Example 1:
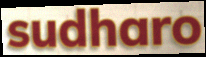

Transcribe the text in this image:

sudharo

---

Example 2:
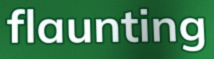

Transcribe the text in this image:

flaunting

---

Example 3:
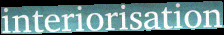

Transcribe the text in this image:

interiorisation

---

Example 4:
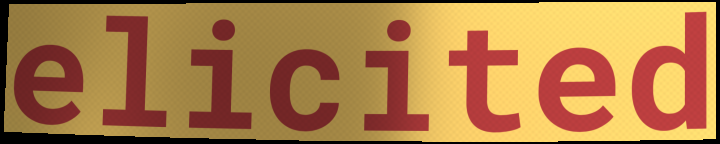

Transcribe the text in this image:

elicited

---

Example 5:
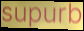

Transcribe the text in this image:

supurb